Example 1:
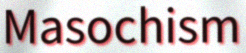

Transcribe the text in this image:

Masochism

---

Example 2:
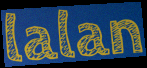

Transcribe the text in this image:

lalan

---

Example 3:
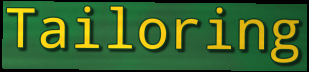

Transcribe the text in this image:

Tailoring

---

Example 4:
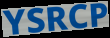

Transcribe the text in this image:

YSRCP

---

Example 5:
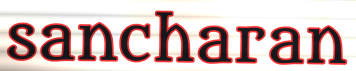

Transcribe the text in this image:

sancharan